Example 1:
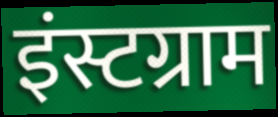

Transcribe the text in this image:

इंस्टग्राम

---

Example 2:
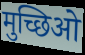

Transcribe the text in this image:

मुच्छिओ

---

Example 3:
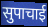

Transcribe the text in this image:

सुपाचाई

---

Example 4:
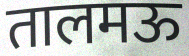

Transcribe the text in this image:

तालमऊ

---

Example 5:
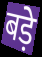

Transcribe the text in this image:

बड़े